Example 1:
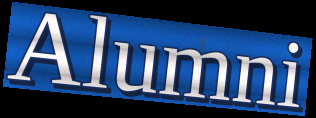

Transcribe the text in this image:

Alumni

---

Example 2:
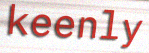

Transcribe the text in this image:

keenly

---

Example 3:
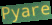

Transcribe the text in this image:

Pyare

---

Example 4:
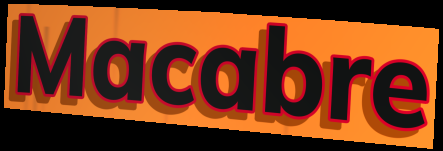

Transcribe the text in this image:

Macabre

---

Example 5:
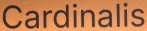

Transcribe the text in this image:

Cardinalis